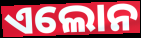
ଏଲୋନ